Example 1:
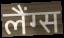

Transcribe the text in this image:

लैंग्स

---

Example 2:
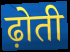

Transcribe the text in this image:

ढ़ोती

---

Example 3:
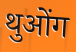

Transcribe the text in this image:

थुओंग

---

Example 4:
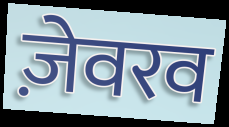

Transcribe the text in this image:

ज़ेवरव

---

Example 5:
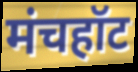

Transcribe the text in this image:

मंचहॉट